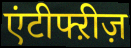
एंटीफ्ऱीज़